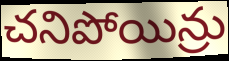
చనిపోయిన్రు